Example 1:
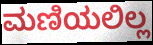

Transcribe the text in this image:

ಮಣಿಯಲಿಲ್ಲ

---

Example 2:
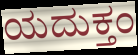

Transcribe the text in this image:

ಯದುಕ್ತಂ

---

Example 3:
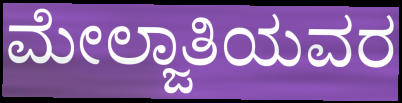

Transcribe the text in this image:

ಮೇಲ್ಜಾತಿಯವರ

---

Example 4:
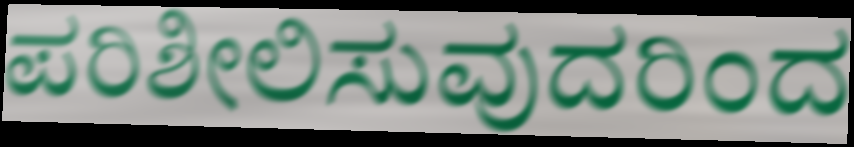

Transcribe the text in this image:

ಪರಿಶೀಲಿಸುವುದರಿಂದ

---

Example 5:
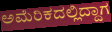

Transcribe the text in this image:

ಅಮೆರಿಕದಲ್ಲಿದ್ದಾಗ